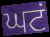
ਘਟਂ